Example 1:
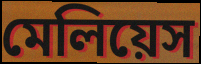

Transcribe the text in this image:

মেলিয়েস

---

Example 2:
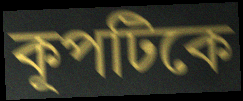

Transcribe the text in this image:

কূপটিকে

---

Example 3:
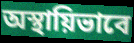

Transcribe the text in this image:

অস্থায়িভাবে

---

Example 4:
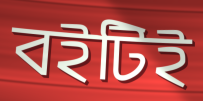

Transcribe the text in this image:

বইটিই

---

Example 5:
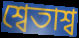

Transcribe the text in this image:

শ্বেতাশ্ব